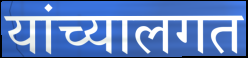
यांच्यालगत